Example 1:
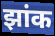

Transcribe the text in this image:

झांक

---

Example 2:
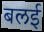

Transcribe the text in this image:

बलई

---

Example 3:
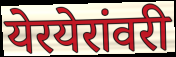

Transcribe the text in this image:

येरयेरांवरी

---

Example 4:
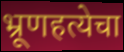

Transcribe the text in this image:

भ्रूणहत्येचा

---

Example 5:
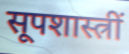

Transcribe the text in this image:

सूपशास्त्रीं